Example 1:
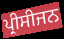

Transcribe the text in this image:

ਪ੍ਰੀਸੀਜਨ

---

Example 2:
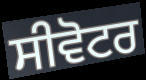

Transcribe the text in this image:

ਸੀਵੋਟਰ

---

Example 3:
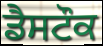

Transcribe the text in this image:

ਡੈਸਟੌਕ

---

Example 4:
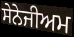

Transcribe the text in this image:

ਸੇਨੇਜੀਅਮ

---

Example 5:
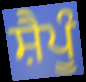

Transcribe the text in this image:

ਸ਼ੈਪੂੰ